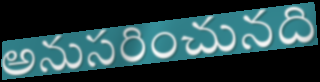
అనుసరించునది